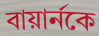
বায়ার্নকে